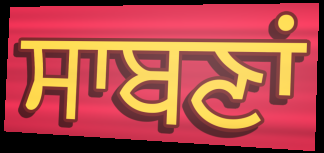
ਸਾਬਣਾਂ